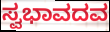
ಸ್ವಭಾವದವ